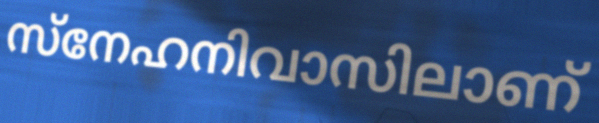
സ്നേഹനിവാസിലാണ്